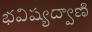
భవిష్యద్వాణి